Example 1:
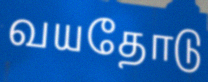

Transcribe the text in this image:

வயதோடு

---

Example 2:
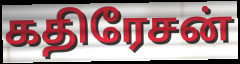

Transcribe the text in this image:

கதிரேசன்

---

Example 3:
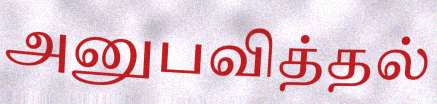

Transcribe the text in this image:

அனுபவித்தல்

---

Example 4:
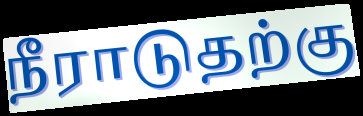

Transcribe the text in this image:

நீராடுதற்கு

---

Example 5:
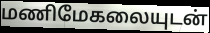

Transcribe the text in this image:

மணிமேகலையுடன்